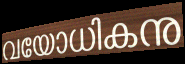
വയോധികനു